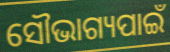
ସୌଭାଗ୍ୟପାଇଁ